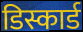
डिस्कार्ड